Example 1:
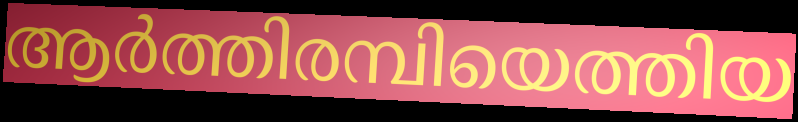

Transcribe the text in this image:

ആർത്തിരമ്പിയെത്തിയ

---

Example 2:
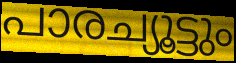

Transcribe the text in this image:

പാരച്യൂട്ടും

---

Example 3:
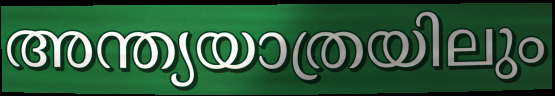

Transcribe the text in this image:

അന്ത്യയാത്രയിലും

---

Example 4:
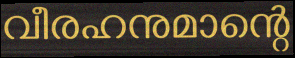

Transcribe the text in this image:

വീരഹനുമാന്റെ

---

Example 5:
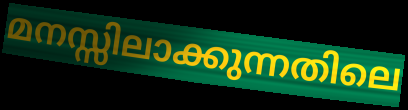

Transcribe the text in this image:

മനസ്സിലാക്കുന്നതിലെ